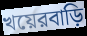
খয়েরবাড়ি